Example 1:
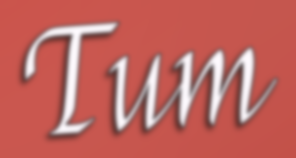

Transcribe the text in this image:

Tum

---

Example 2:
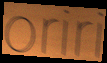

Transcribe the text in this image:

oriri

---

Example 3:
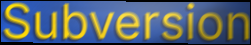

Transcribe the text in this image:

Subversion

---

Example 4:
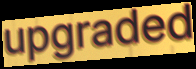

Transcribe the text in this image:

upgraded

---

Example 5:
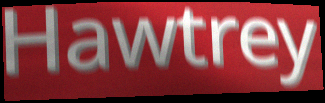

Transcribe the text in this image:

Hawtrey